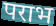
पराभ